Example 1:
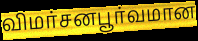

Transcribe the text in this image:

விமர்சனபூர்வமான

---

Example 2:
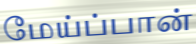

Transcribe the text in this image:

மேய்ப்பான்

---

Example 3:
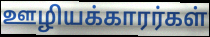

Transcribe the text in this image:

ஊழியக்காரர்கள்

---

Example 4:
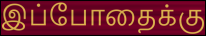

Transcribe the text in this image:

இப்போதைக்கு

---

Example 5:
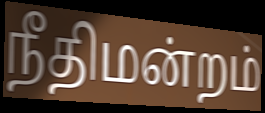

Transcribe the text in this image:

நீதிமன்றம்